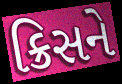
ક્રિસને